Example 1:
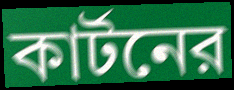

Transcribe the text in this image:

কার্টনের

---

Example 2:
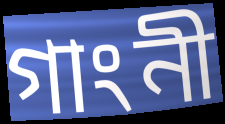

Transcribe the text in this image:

গাংনী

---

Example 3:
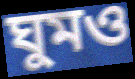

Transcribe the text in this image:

ঘুমও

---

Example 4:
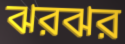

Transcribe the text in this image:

ঝরঝর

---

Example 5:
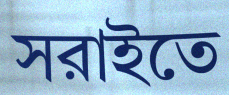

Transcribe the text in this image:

সরাইতে